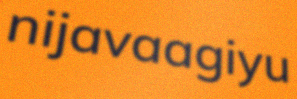
nijavaagiyu